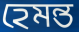
হেমন্ত